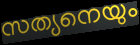
സത്യനെയും